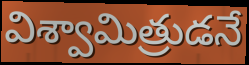
విశ్వామిత్రుడనే